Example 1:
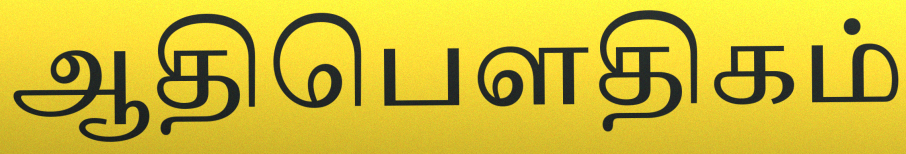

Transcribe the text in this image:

ஆதிபௌதிகம்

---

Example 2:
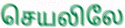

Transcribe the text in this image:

செயலிலே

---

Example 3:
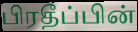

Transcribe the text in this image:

பிரதீப்பின்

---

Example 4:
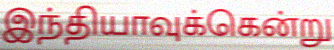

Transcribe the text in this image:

இந்தியாவுக்கென்று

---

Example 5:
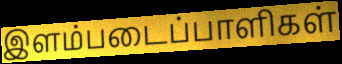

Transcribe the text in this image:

இளம்படைப்பாளிகள்